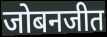
जोबनजीत